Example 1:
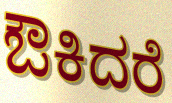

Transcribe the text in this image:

ಔಕಿದರೆ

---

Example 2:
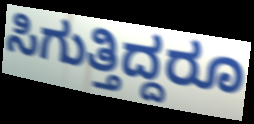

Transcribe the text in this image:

ಸಿಗುತ್ತಿದ್ದರೂ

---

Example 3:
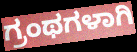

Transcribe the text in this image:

ಗ್ರಂಥಗಳಾಗಿ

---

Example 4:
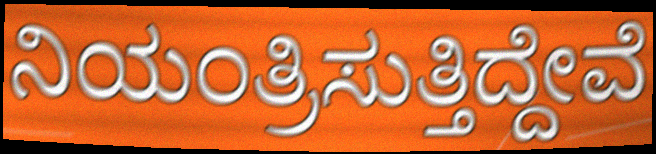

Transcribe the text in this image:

ನಿಯಂತ್ರಿಸುತ್ತಿದ್ದೇವೆ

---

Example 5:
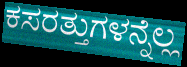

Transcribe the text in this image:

ಕಸರತ್ತುಗಳನ್ನೆಲ್ಲ